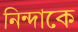
নিন্দাকে